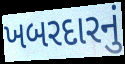
ખબરદારનું